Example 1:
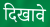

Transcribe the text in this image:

दिखावे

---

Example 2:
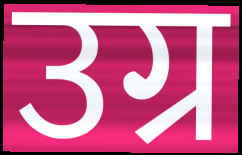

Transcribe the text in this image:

उग्र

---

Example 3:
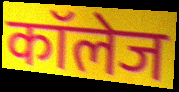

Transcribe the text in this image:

कॉलेज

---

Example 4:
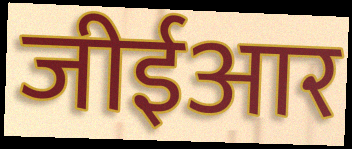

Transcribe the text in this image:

जीईआर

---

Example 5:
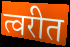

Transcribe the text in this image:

त्वरीत